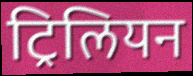
ट्रिलियन